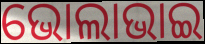
ଭୋଲାଭାଇ